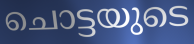
ചൊട്ടയുടെ